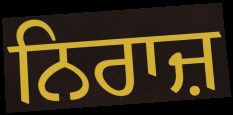
ਨਿਰਾਜ਼